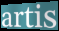
artis